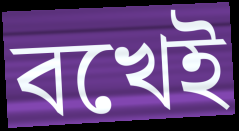
বখেই